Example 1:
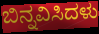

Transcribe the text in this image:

ಬಿನ್ನವಿಸಿದಳು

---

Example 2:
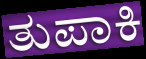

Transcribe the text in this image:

ತುಪಾಕಿ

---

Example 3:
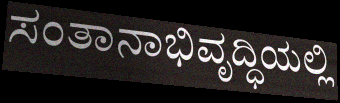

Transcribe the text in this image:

ಸಂತಾನಾಭಿವೃದ್ಧಿಯಲ್ಲಿ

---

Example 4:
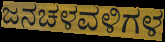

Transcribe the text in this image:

ಜನಚಳವಳಿಗಳ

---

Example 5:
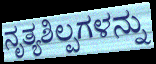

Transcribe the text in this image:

ನೃತ್ಯಶಿಲ್ಪಗಳನ್ನು